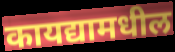
कायद्यामधील